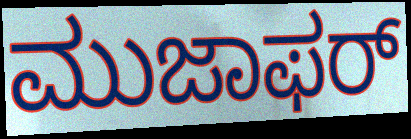
ಮುಜಾಫರ್